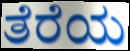
ತೆರೆಯ